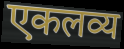
एकलव्य